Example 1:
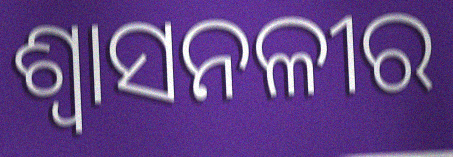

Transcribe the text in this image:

ଶ୍ୱାସନଳୀର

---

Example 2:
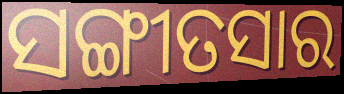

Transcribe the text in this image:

ସଙ୍ଗୀତସାର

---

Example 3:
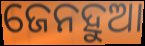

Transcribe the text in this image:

ଜେନହୁଆ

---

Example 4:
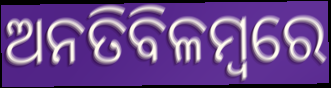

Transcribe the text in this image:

ଅନତିବିଳମ୍ବରେ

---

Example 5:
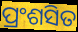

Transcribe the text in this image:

ପ୍ରଂଶସିତ